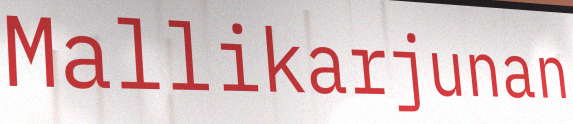
Mallikarjunan